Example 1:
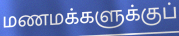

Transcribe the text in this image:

மணமக்களுக்குப்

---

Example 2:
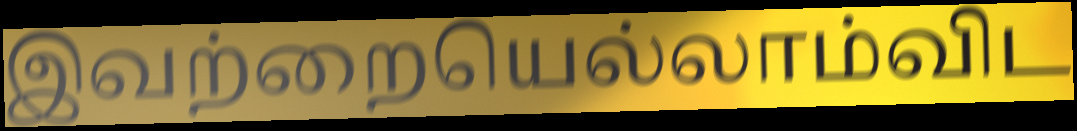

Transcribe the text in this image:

இவற்றையெல்லாம்விட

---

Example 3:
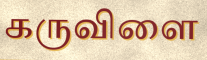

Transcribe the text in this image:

கருவிளை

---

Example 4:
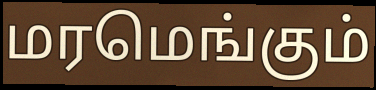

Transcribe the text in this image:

மரமெங்கும்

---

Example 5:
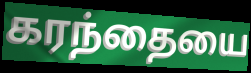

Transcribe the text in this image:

கரந்தையை